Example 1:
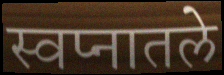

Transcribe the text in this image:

स्वप्नातले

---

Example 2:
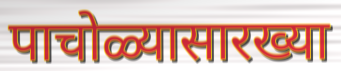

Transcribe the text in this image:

पाचोळ्यासारख्या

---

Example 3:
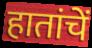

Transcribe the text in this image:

हातांचें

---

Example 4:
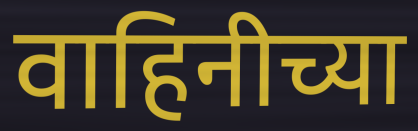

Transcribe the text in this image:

वाहिनीच्या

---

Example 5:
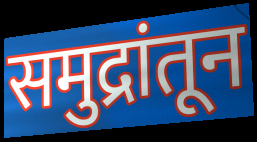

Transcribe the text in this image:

समुद्रांतून